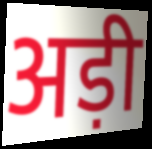
अड़ी